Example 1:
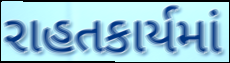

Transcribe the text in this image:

રાહતકાર્યમાં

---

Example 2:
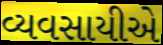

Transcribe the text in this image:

વ્યવસાયીએ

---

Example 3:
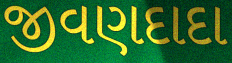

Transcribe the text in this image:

જીવણદાદા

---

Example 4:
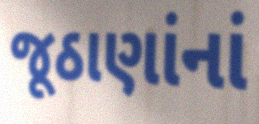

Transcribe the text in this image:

જૂઠાણાંનાં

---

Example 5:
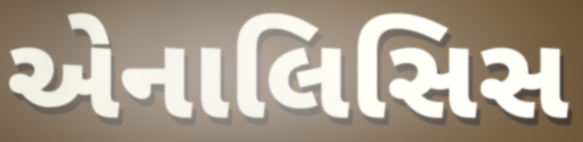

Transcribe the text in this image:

એનાલિસિસ